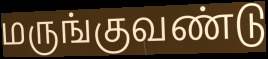
மருங்குவண்டு